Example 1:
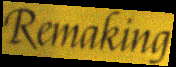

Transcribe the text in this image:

Remaking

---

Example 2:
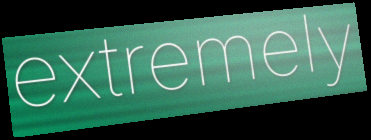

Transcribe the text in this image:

extremely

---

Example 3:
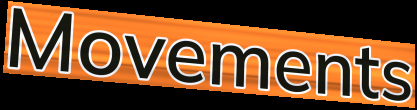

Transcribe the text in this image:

Movements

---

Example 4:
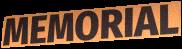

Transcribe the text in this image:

MEMORIAL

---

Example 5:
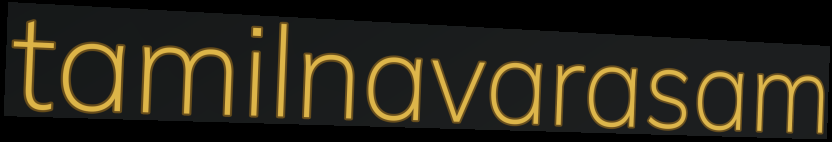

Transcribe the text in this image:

tamilnavarasam